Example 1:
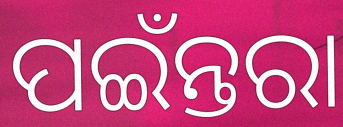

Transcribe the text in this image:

ପଇଁନ୍ତରା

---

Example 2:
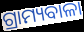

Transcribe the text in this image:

ଗ୍ରାମ୍ୟବାଳା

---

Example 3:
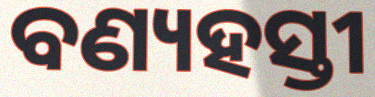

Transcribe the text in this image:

ବଣ୍ୟହସ୍ତୀ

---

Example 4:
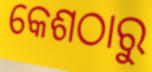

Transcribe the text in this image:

କେଶଠାରୁ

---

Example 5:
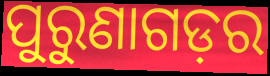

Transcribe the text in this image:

ପୁରୁଣାଗଡ଼ର